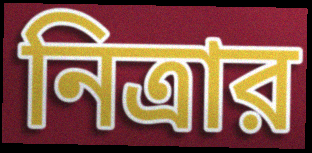
নিত্রার